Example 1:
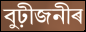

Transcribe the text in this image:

বুঢ়ীজনীৰ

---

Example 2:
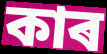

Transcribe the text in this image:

কাৰ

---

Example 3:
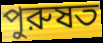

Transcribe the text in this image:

পুৰুষত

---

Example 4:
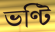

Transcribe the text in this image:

ভণ্টি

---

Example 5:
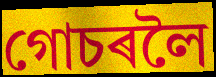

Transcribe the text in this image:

গোচৰলৈ